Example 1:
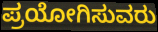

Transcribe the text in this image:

ಪ್ರಯೋಗಿಸುವರು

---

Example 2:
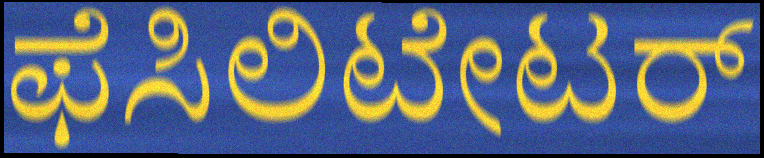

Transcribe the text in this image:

ಫೆಸಿಲಿಟೇಟರ್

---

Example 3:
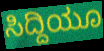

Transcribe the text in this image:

ಸಿದ್ದಿಯೂ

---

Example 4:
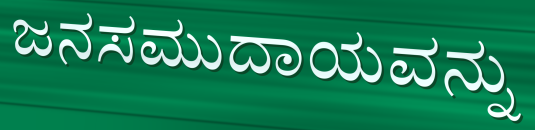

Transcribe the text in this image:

ಜನಸಮುದಾಯವನ್ನು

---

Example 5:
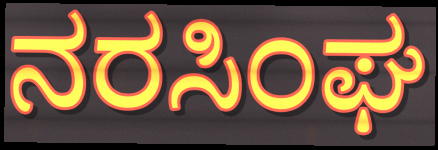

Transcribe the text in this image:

ನರಸಿಂಘ